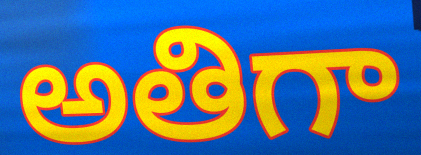
అతిగా